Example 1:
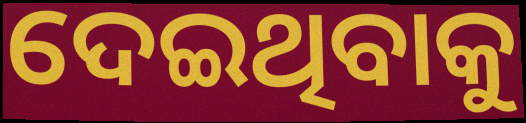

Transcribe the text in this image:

ଦେଇଥିବାକୁ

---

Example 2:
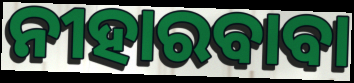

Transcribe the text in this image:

ନୀହାରବାବା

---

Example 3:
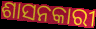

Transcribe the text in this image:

ଶାସନକାରୀ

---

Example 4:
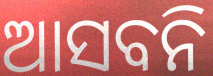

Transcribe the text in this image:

ଆସବନି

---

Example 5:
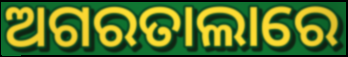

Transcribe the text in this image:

ଅଗରତାଲାରେ